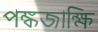
পঙ্কজাক্ষি